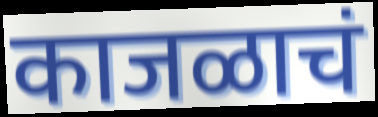
काजळाचं